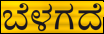
ಬೆಳಗದೆ